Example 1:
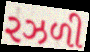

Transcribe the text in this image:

રઝળી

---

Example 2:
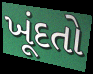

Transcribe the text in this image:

ખૂંદતો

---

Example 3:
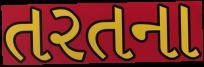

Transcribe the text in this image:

તરતના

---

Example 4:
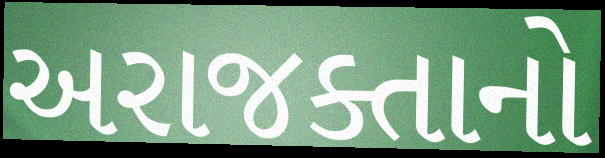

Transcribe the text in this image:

અરાજક્તાનો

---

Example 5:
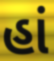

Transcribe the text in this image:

હાં